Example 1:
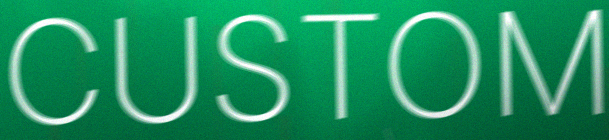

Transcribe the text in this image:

CUSTOM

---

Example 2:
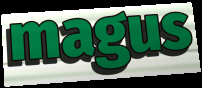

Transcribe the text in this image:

magus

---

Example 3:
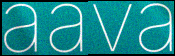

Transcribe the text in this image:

aava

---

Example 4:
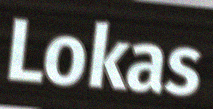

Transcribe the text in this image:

Lokas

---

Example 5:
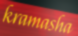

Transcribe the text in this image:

kramasha